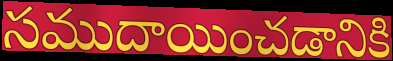
సముదాయించడానికి